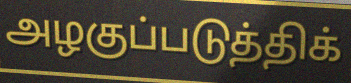
அழகுப்படுத்திக்